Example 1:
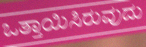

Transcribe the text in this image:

ಒತ್ತಾಯಿಸಿರುವುದು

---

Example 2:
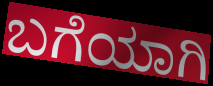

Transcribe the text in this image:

ಬಗೆಯಾಗಿ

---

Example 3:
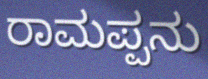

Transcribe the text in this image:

ರಾಮಪ್ಪನು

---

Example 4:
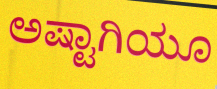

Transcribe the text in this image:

ಅಷ್ಟಾಗಿಯೂ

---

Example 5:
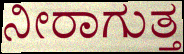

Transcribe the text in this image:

ನೀರಾಗುತ್ತ